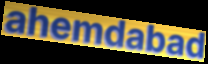
ahemdabad